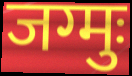
जग्मुः